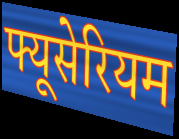
फ्यूसेरियम